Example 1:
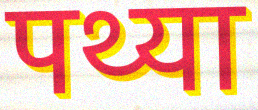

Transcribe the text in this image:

पथ्या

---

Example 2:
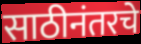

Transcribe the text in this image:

साठीनंतरचे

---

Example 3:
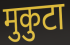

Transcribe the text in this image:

मुकुटा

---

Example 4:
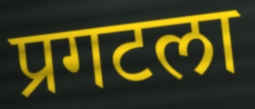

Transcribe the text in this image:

प्रगटला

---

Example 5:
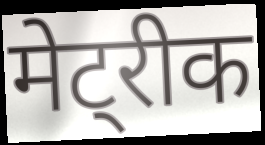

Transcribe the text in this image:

मेट्रीक